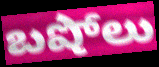
బషోలు